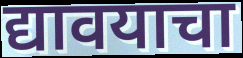
द्यावयाचा